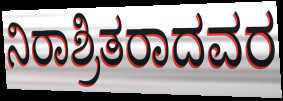
ನಿರಾಶ್ರಿತರಾದವರ